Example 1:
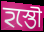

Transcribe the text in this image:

হস্তৌ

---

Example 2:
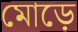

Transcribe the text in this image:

মোড়ে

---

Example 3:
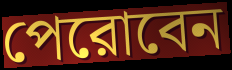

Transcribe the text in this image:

পেরোবেন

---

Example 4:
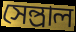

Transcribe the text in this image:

সেন্ত্রাল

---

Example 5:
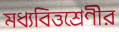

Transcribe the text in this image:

মধ্যবিত্তশ্রেণীর